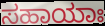
ಸಹಾಯಾಃ